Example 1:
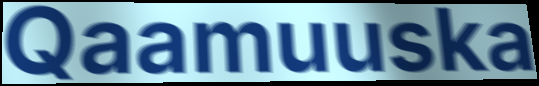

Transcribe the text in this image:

Qaamuuska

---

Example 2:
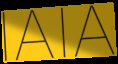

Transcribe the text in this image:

IAIA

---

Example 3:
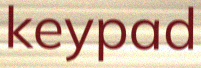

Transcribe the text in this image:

keypad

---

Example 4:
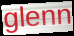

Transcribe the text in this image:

glenn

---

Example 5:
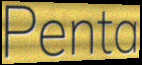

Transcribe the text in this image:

Penta